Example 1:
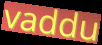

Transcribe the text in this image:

vaddu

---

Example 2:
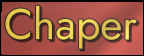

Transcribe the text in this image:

Chaper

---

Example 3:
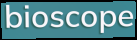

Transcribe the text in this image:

bioscope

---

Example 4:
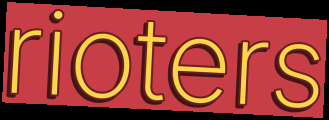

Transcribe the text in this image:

rioters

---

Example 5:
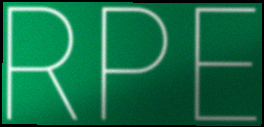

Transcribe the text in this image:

RPE